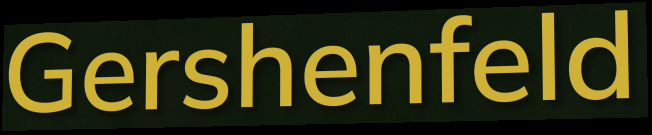
Gershenfeld